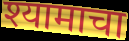
श्यामाचा